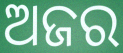
ଅଜର